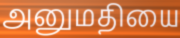
அனுமதியை